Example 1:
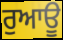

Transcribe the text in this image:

ਰੁਆਊ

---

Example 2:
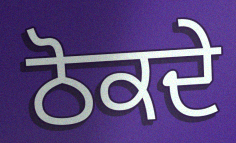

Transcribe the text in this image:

ਠੋਕਦੇ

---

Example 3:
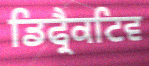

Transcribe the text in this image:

ਡਿਫ੍ਰੈਕਟਿਵ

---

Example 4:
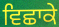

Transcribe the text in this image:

ਵਿਛਾਕੇ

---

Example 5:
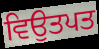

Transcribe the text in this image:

ਵਿਉਤਪਤ